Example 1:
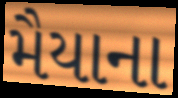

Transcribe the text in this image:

મૈયાના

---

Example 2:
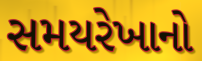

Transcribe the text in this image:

સમયરેખાનો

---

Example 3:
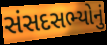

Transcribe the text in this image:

સંસદસભ્યોનું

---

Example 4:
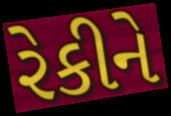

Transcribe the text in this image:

રેકીને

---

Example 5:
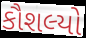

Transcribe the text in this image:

કૌશલ્યો